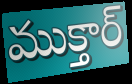
ముక్తార్